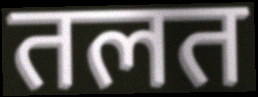
तलत